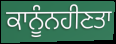
ਕਾਨੂੰਨਹੀਣਤਾ